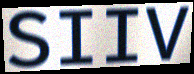
SIIV